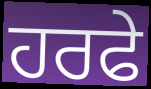
ਹਰਫੇ